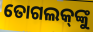
ତୋଗଲକ୍‌ଙ୍କୁ